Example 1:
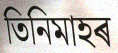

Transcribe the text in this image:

তিনিমাহৰ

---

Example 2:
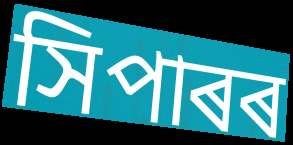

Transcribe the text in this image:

সিপাৰৰ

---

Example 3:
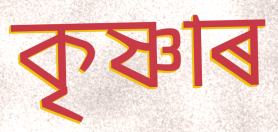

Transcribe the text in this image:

কৃষ্ণাৰ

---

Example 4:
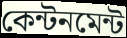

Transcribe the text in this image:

কেন্টনমেন্ট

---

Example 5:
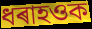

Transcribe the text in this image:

ধৰাহওক